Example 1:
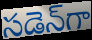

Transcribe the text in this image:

సడెన్‌గా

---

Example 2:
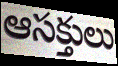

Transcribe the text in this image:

ఆసక్తులు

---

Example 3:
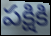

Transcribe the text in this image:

పక్షికి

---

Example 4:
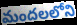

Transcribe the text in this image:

మందలలోని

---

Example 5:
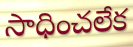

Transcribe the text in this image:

సాధించలేక